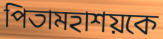
পিতামহাশয়কে